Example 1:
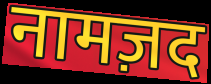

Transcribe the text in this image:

नामज़द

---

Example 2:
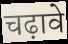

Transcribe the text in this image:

चढ़ावे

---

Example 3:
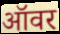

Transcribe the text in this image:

ऑवर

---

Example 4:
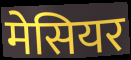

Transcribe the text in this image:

मेसियर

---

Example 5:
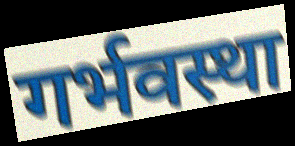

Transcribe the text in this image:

गर्भवस्था